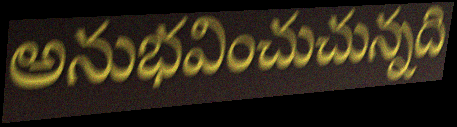
అనుభవించుచున్నది